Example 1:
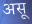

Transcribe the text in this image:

असू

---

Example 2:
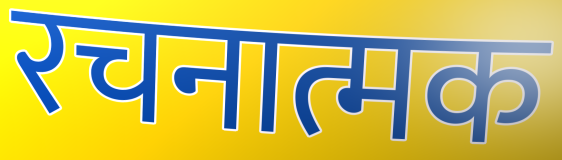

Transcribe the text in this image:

रचनात्मक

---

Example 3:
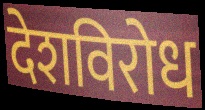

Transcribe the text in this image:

देशविरोध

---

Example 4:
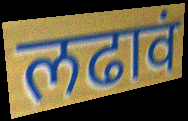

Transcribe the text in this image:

लढावं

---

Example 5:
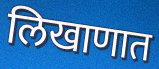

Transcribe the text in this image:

लिखाणात